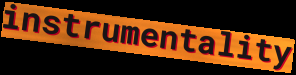
instrumentality